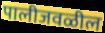
पालीजवळील